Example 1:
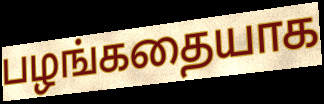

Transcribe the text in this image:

பழங்கதையாக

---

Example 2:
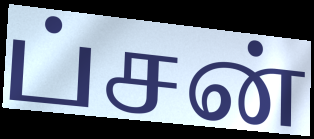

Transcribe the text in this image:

ப்சன்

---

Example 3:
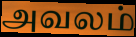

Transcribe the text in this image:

அவலம்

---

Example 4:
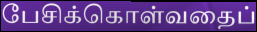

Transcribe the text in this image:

பேசிக்கொள்வதைப்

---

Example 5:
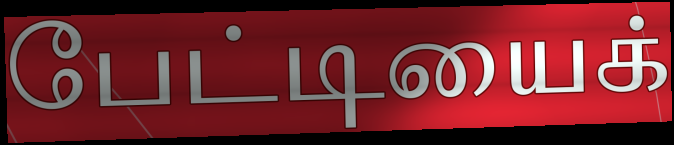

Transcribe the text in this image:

பேட்டியைக்